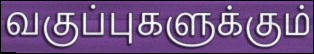
வகுப்புகளுக்கும்